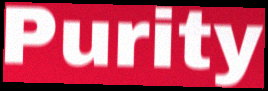
Purity